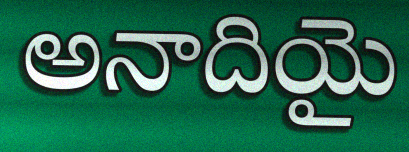
అనాదియై